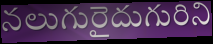
నలుగురైదుగురిని